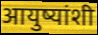
आयुष्यांशी